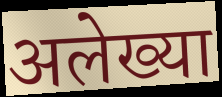
अलेख्या